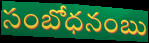
సంబోధనంబు